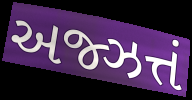
અજ્ઝત્તં